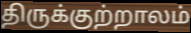
திருக்குற்றாலம்